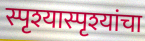
स्पृश्यास्पृश्यांचा